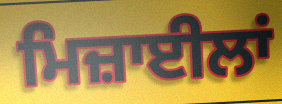
ਮਿਜ਼ਾਈਲਾਂ